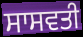
ਸਾਸਵਤੀ